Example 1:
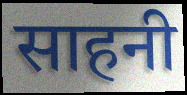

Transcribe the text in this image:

साहनी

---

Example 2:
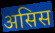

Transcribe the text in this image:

असिस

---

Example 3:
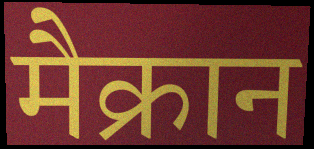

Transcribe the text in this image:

मैक्रान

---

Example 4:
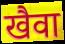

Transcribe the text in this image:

खैवा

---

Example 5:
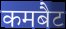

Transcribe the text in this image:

कमबैट